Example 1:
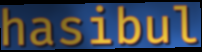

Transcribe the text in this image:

hasibul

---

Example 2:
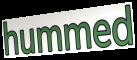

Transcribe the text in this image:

hummed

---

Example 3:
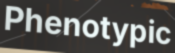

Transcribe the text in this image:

Phenotypic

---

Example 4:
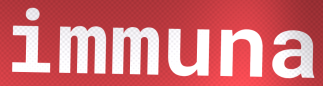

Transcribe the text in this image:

immuna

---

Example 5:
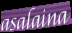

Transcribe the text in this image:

asalaina